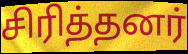
சிரித்தனர்